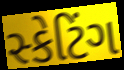
સ્કેટિંગ